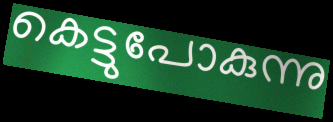
കെട്ടുപോകുന്നു